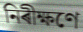
নিৰীক্ষণে